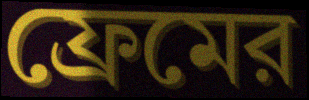
ফ্রেমের